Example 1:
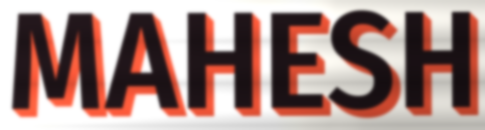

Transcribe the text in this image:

MAHESH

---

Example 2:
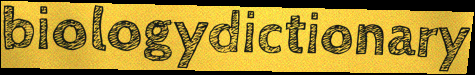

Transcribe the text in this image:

biologydictionary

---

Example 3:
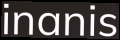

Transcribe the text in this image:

inanis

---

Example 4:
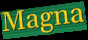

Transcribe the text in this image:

Magna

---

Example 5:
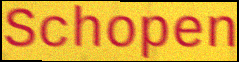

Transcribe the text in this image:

Schopen